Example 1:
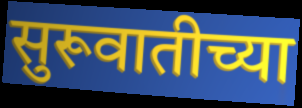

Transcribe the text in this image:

सुरूवातीच्या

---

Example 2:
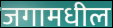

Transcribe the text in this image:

जगामधील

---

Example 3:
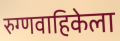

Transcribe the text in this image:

रुग्णवाहिकेला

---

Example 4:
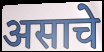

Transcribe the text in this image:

असाचे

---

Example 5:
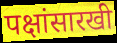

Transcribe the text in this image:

पक्षांसारखी